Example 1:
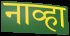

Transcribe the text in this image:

नाव्हा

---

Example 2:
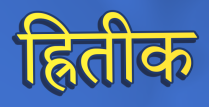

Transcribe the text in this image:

ह्रितीक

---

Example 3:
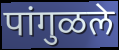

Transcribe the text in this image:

पांगुळले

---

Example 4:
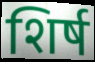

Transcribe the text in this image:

शिर्ष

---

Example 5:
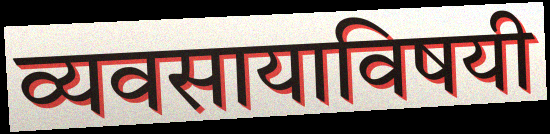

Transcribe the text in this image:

व्यवसायाविषयी